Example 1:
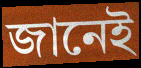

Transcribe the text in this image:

জানেই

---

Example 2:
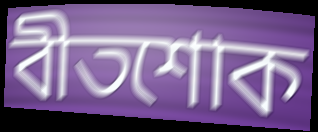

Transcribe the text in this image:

বীতশোক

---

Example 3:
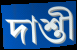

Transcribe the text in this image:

দাশ্তী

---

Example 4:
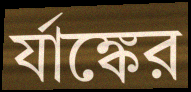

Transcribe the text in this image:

র্যাঙ্কের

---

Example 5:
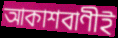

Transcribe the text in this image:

আকাশবাণীই